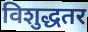
विशुद्धतर